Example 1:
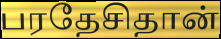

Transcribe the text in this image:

பரதேசிதான்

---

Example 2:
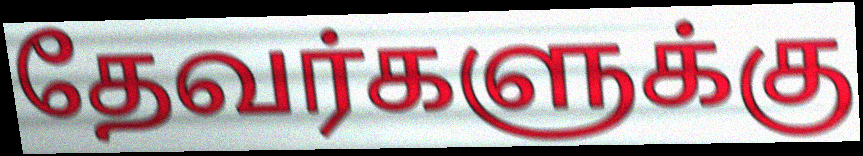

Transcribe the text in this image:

தேவர்களுக்கு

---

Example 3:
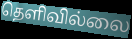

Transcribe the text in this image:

தெளிவில்லை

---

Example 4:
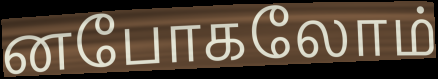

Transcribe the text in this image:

னபோகலோம்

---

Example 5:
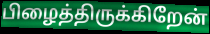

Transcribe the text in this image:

பிழைத்திருக்கிறேன்